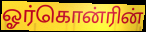
ஓர்கொன்ரின்